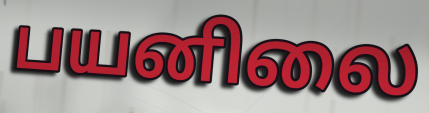
பயனிலை